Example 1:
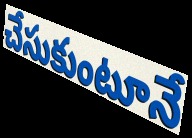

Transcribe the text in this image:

చేసుకుంటూనే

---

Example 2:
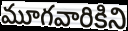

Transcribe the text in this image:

మూగవారికిని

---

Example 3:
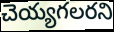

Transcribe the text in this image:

చెయ్యగలరని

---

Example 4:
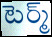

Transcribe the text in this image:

టెర్మ్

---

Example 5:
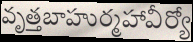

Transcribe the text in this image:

వృత్తబాహుర్మహావీర్యో